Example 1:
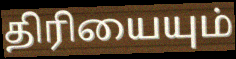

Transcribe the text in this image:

திரியையும்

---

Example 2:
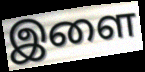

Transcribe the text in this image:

இளை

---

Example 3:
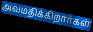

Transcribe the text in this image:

அவமதிக்கிறார்கள்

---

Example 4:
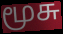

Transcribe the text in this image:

மூசு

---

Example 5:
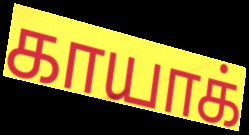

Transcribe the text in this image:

காயாக்